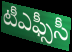
టీఎఫ్సీసీ